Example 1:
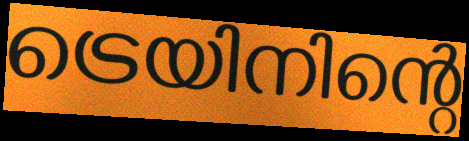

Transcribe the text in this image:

ട്രെയിനിന്റെ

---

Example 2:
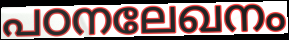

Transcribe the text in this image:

പഠനലേഖനം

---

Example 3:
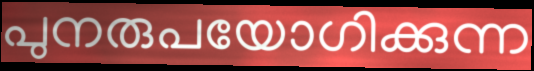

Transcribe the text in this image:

പുനരുപയോഗിക്കുന്ന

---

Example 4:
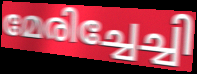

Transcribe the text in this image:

മേരിച്ചേച്ചി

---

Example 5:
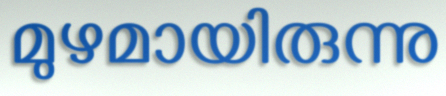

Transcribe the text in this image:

മുഴമായിരുന്നു